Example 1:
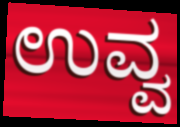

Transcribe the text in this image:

ಉವ್ವ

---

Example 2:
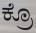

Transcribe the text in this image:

ಕ್ರೊ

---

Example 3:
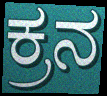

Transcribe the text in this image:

ಕ್ರನ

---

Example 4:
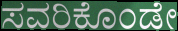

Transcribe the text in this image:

ಸವರಿಕೊಂಡೇ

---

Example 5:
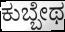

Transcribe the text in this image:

ಕುಬ್ಬೇಥ